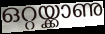
ഒറ്റയ്ക്കാണു